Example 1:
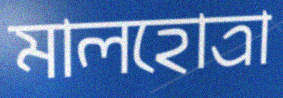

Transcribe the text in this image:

মালহোত্রা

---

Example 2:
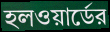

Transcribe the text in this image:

হলওয়ার্ডের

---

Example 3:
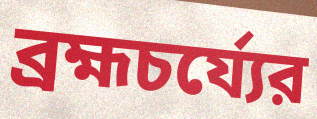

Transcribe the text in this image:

ব্রহ্মচর্য্যের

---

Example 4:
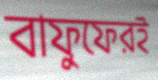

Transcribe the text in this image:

বাফুফেরই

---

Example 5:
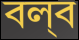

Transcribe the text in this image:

বল্‌ব